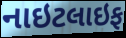
નાઇટલાઇફ